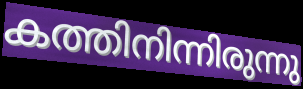
കത്തിനിന്നിരുന്നു